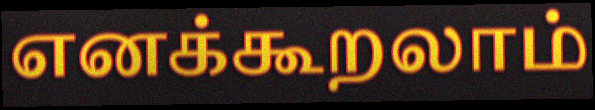
எனக்கூறலாம்